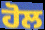
ਹੋਲ